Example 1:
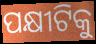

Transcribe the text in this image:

ପକ୍ଷୀଟିକୁ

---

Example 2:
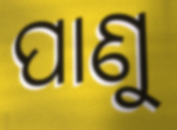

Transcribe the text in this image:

ପାଣୁ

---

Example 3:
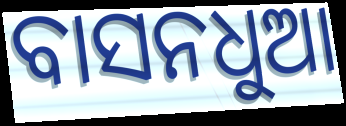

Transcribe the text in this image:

ବାସନଧୁଆ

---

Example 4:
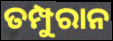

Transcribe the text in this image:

ତମ୍ପୁରାନ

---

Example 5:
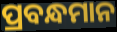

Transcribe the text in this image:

ପ୍ରବନ୍ଧମାନ